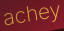
achey